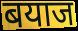
बयाज